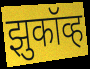
झुकॉव्ह